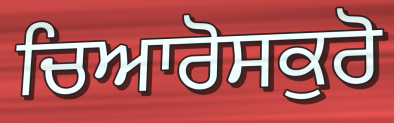
ਚਿਆਰੋਸਕੁਰੋ